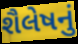
શૈલેષનું